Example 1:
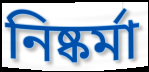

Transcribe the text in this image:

নিষ্কর্মা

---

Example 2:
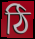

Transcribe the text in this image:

ঠি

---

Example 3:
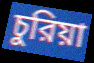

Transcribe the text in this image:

চুরিয়া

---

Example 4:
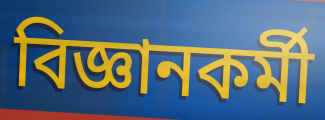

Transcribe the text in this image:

বিজ্ঞানকর্মী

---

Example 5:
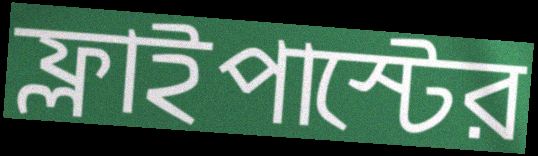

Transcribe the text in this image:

ফ্লাইপাস্টের